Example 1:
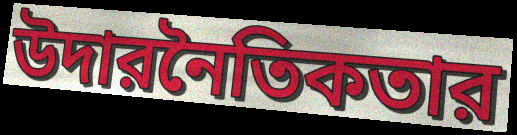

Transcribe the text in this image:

উদারনৈতিকতার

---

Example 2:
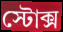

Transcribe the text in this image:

স্টোক্স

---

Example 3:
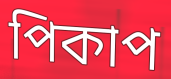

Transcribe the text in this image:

পিকাপ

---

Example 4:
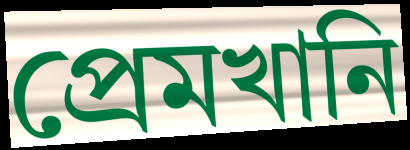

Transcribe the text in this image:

প্রেমখানি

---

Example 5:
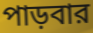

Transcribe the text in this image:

পাড়বার